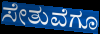
ಸೇತುವೆಗೂ